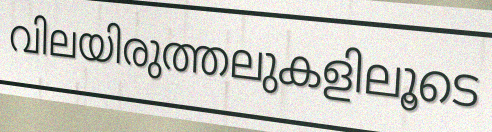
വിലയിരുത്തലുകളിലൂടെ